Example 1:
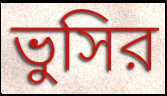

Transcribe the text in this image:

ভুসির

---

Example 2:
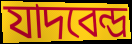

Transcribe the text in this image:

যাদবেন্দ্র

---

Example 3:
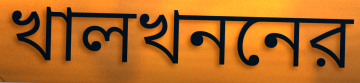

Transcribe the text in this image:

খালখননের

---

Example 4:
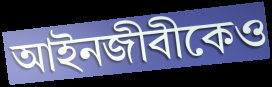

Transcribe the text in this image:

আইনজীবীকেও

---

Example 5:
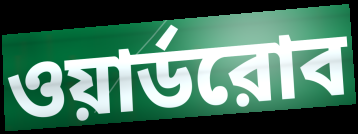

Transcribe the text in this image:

ওয়ার্ডরোব